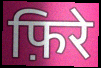
फ़िरे